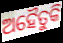
ଅହୈତୁକି